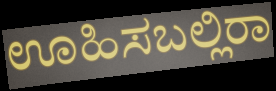
ಊಹಿಸಬಲ್ಲಿರಾ